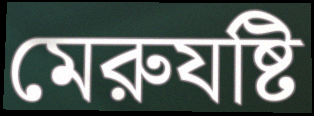
মেরুযষ্টি